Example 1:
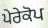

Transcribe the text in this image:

ਪੇਰੇਕੋਪ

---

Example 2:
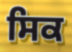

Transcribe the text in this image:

ਸਿਕ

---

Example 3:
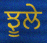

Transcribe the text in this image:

ਝੂਲੇ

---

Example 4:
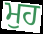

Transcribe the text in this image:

ਮੁਹ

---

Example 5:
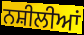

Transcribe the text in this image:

ਨਸ਼ੀਲੀਆਂ